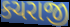
કચરાજી